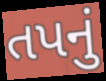
તપનું